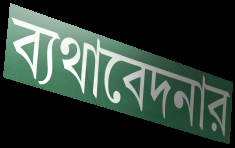
ব্যথাবেদনার